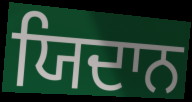
ਯਿਦਾਨ